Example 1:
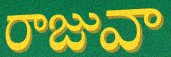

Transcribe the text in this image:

రాజువా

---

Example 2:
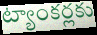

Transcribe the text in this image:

ట్యాంకర్లకు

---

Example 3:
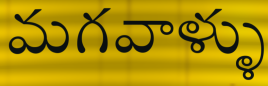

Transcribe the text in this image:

మగవాళ్ళు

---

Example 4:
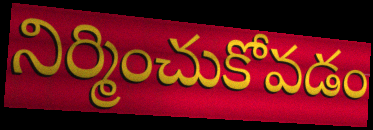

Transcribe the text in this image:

నిర్మించుకోవడం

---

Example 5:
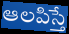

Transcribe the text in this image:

ఆలపిస్తే